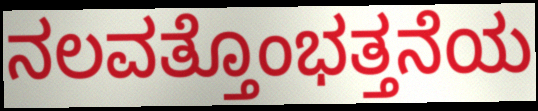
ನಲವತ್ತೊಂಭತ್ತನೆಯ